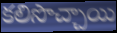
కలిసొచ్చాయి